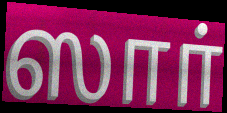
ஸார்